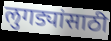
लुगड्यांसाठी